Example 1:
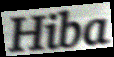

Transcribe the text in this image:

Hiba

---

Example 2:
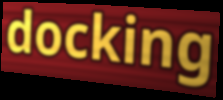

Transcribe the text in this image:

docking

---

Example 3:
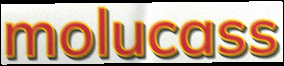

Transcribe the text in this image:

molucass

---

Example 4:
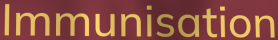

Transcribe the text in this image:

Immunisation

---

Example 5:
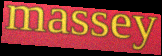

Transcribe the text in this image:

massey